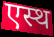
एस्थ